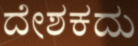
ದೇಶಕದು